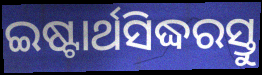
ଇଷ୍ଟାର୍ଥସିଦ୍ଧରସ୍ତୁ